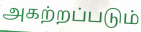
அகற்றப்படும்